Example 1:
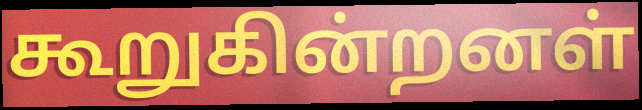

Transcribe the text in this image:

கூறுகின்றனள்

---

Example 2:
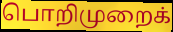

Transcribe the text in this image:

பொறிமுறைக்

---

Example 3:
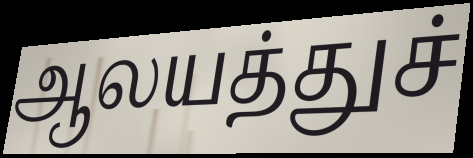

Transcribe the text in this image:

ஆலயத்துச்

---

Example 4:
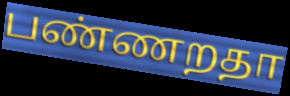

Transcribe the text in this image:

பண்ணறதா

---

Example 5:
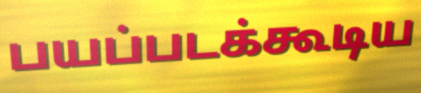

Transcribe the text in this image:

பயப்படக்கூடிய